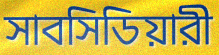
সাবসিডিয়ারী